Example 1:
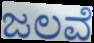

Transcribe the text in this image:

ಜಲವೆ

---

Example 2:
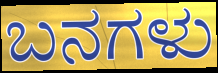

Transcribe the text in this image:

ಬನಗಳು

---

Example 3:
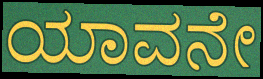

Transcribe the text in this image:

ಯಾವನೇ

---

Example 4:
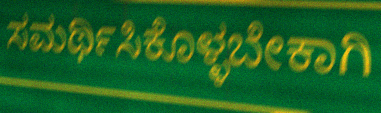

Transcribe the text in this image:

ಸಮರ್ಥಿಸಿಕೊಳ್ಳಬೇಕಾಗಿ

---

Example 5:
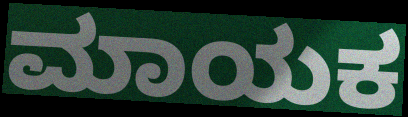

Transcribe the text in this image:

ಮಾಯಕ